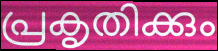
പ്രകൃതിക്കും